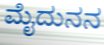
ಮೈದುನನ